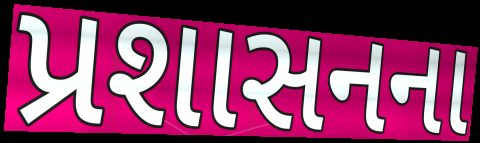
પ્રશાસનના